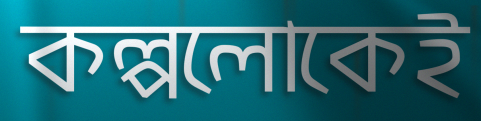
কল্পলোকেই